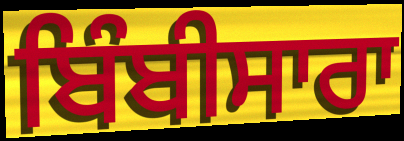
ਬਿੰਬੀਸਾਰਾ